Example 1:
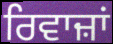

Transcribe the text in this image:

ਰਿਵਾਜ਼ਾਂ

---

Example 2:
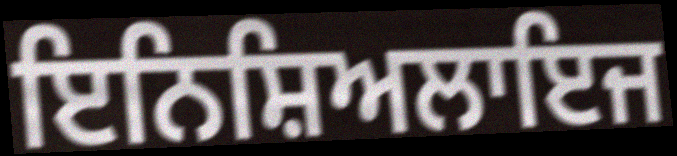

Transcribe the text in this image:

ਇਨਿਸ਼ਿਅਲਾਇਜ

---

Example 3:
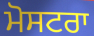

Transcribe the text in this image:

ਮੋਸਟਰਾ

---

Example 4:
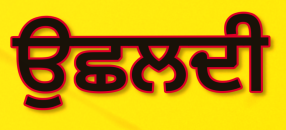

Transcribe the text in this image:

ਉਛਲਦੀ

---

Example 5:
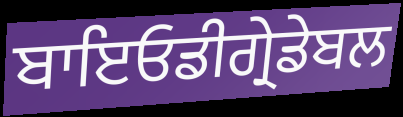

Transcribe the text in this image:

ਬਾਇਓਡੀਗ੍ਰੇਡੇਬਲ